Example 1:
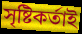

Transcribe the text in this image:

সৃষ্টিকৰ্তাই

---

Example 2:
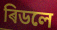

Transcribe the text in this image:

ৰিডলে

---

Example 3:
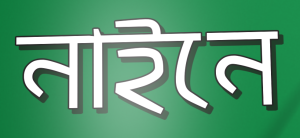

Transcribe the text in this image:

নাইনে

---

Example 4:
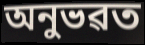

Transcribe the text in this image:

অনুভৱত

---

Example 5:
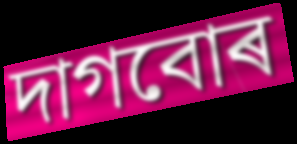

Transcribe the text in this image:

দাগবোৰ